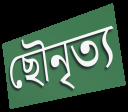
ছৌনৃত্য